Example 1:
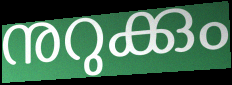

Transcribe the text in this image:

നുറുക്കും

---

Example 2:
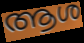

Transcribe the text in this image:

ആശ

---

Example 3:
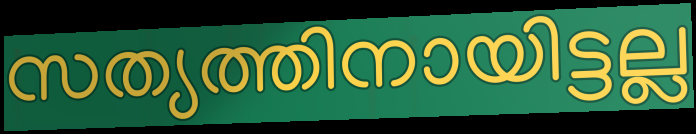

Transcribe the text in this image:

സത്യത്തിനായിട്ടല്ല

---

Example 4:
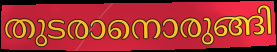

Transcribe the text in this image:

തുടരാനൊരുങ്ങി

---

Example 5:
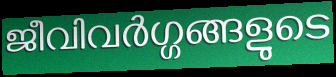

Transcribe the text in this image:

ജീവിവർഗ്ഗങ്ങളുടെ